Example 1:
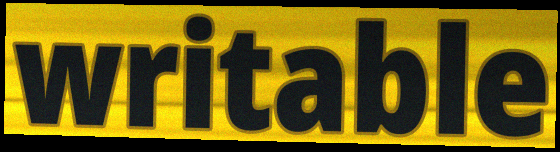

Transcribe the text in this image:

writable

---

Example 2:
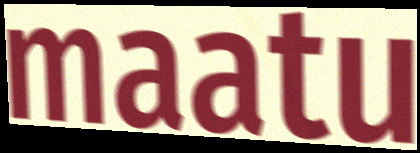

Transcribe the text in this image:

maatu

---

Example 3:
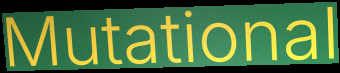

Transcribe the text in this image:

Mutational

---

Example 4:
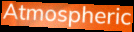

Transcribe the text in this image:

Atmospheric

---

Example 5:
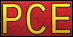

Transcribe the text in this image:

PCE